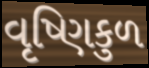
વૃષ્ણિકુળ